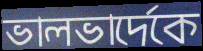
ভালভার্দেকে